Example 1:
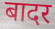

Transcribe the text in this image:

बादर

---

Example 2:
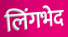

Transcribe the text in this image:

लिंगभेद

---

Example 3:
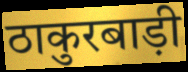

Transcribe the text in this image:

ठाकुरबाड़ी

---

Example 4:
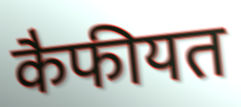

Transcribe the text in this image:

कैफीयत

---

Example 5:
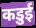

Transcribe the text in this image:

कडुई